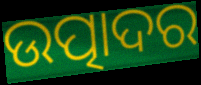
ଉତ୍ପାଦର